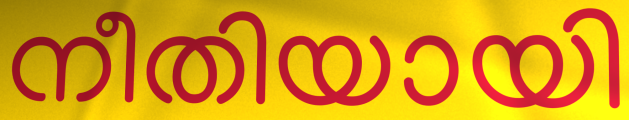
നീതിയായി